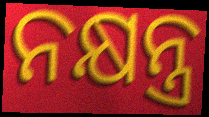
ନକ୍ଷନ୍ତ୍ର